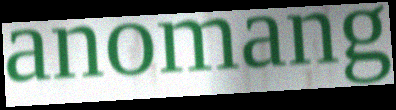
anomang